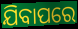
ଯିବାପରେ